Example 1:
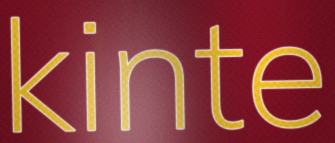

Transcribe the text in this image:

kinte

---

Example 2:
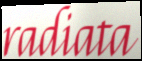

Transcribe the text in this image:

radiata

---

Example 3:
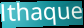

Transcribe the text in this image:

Ithaque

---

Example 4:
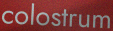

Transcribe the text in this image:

colostrum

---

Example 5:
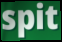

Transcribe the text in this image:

spit